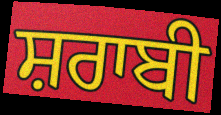
ਸ਼ਰਾਬੀ